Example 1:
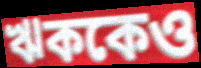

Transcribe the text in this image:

ঋককেও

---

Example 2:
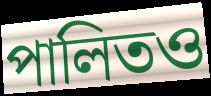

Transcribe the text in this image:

পালিতও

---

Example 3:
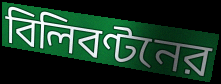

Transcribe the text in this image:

বিলিবণ্টনের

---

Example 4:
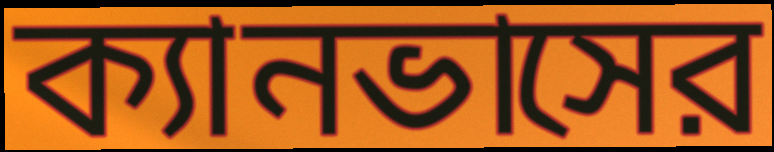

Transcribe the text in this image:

ক্যানভাসের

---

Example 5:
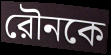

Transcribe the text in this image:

রৌনকে